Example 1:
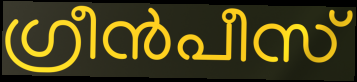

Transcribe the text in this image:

ഗ്രീൻപീസ്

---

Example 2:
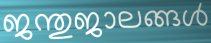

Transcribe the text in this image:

ജന്തുജാലങ്ങൾ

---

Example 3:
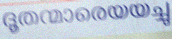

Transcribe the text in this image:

ദൂതന്മാരെയയച്ചു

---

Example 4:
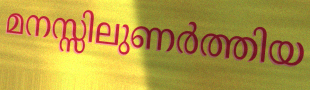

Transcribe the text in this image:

മനസ്സിലുണർത്തിയ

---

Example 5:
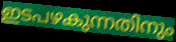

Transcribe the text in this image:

ഇടപഴകുന്നതിനും